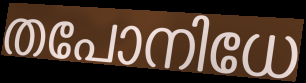
തപോനിധേ